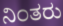
ನಿಂತರು